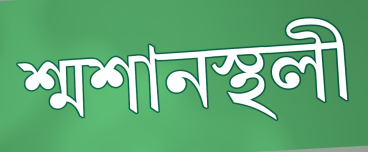
শ্মশানস্থলী